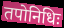
तपोनिधिः